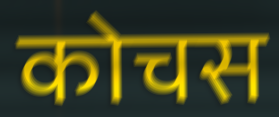
कोचस